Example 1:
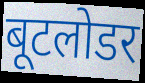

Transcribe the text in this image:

बूटलोडर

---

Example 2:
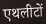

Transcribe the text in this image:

एथलीटों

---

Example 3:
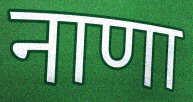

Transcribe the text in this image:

नाणा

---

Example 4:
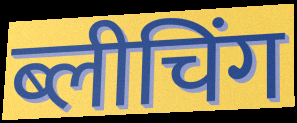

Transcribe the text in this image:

ब्लीचिंग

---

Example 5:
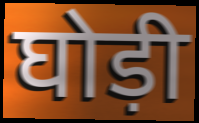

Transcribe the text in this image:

घोड़ी